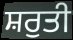
ਸ਼ਰੁਤੀ